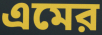
এমের